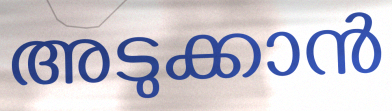
അടുക്കാൻ